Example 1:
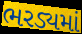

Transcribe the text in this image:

ભરડ્યમાં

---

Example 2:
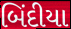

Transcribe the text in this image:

બિંદીયા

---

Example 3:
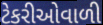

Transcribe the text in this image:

ટેકરીઓવાળી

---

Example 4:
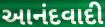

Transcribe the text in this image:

આનંદવાદી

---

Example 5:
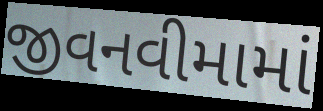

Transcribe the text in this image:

જીવનવીમામાં